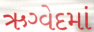
ઋગ્વેદમાં